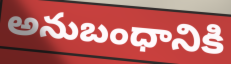
అనుబంధానికి